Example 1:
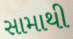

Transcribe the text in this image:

સામાથી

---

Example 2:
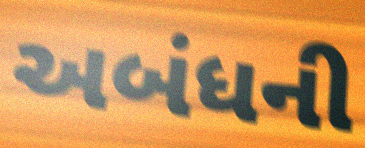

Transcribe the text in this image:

અબંધની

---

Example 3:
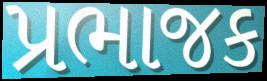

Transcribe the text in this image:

પ્રભાજક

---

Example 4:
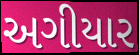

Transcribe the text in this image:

અગીયાર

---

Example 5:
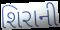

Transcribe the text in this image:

શિરાની